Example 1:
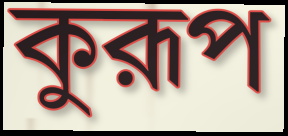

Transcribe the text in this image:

কুরূপ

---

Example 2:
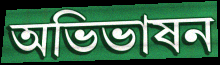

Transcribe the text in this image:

অভিভাষন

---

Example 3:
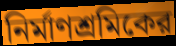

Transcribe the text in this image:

নির্মাণশ্রমিকের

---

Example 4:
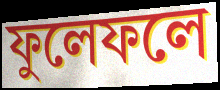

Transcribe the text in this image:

ফুলেফলে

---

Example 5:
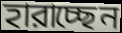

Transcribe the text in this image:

হারাচ্ছেন